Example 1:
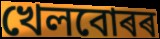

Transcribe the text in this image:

খেলবোৰৰ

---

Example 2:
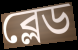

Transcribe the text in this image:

ব্লেড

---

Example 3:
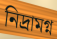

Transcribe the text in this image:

নিদ্ৰামগ্ন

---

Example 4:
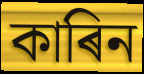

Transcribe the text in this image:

কাৰিন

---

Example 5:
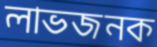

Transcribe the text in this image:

লাভজনক